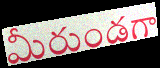
మీరుండగా